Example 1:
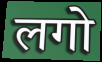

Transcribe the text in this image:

लगो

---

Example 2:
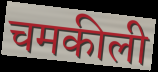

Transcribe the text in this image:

चमकीली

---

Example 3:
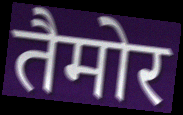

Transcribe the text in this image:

तैमोर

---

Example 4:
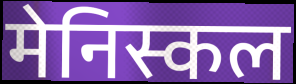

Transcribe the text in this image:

मेनिस्कल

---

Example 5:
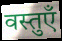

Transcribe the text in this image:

वस्‍तुएँ